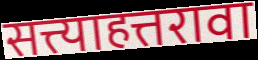
सत्त्याहत्तरावा